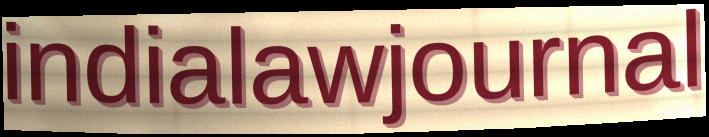
indialawjournal